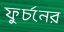
ফুর্চনের